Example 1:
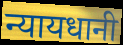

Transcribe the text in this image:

न्यायधानी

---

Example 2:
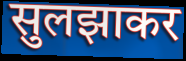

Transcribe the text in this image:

सुलझाकर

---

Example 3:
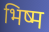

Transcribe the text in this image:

भिष्म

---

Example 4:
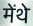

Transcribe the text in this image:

मेंथे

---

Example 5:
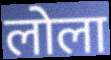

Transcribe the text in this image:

लोला